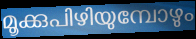
മൂക്കുപിഴിയുമ്പോഴും